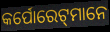
କର୍ପୋରେଟ୍‌ମାନେ